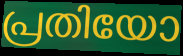
പ്രതിയോ